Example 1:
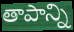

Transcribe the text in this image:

తాపాన్ని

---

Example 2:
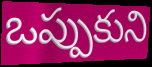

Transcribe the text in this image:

ఒప్పుకుని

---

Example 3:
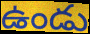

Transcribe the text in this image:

ఉండు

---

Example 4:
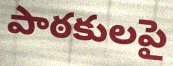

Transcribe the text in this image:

పాఠకులపై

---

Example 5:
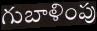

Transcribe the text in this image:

గుబాళింపు